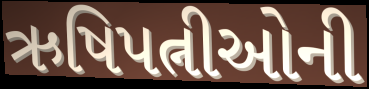
ઋષિપત્નીઓની